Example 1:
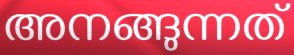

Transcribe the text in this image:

അനങ്ങുന്നത്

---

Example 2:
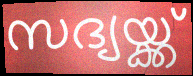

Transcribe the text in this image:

സദ്യയ്ക്ക്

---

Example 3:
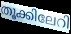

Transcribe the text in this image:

തൂക്കിലേറി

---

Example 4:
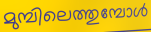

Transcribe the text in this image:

മുമ്പിലെത്തുമ്പോൾ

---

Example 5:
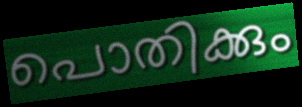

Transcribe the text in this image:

പൊതിക്കും